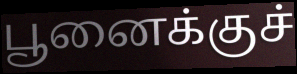
பூனைக்குச்